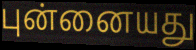
புன்னையது